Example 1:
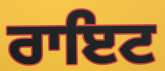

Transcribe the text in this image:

ਰਾਇਟ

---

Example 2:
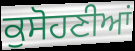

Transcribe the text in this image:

ਕੁਸੋਹਣੀਆਂ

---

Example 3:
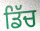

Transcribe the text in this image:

ਡਿੱਚ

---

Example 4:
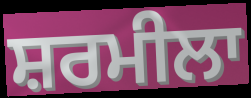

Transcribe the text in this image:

ਸ਼ਰਮੀਲਾ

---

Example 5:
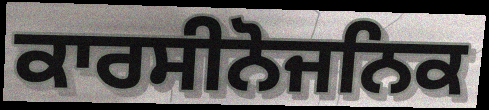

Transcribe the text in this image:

ਕਾਰਸੀਨੋਜਨਿਕ